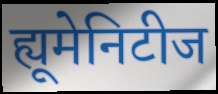
ह्यूमेनिटीज